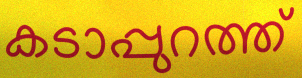
കടാപ്പുറത്ത്